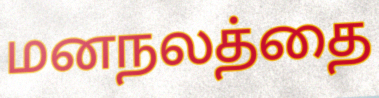
மனநலத்தை